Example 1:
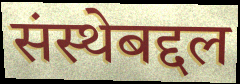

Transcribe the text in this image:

संस्थेबद्दल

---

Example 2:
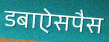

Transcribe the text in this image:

डबाऐसपैस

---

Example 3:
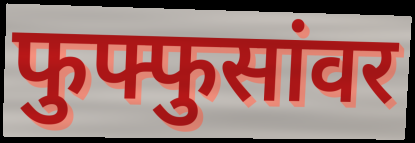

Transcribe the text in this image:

फुफ्फुसांवर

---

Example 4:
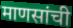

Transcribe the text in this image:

माणसांची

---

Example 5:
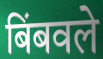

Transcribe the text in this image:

बिंबवले